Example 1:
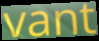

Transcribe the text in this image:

vant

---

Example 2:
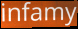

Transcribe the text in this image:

infamy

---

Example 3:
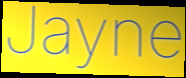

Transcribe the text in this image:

Jayne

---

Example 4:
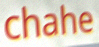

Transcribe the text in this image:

chahe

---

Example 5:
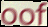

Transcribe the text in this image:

oof